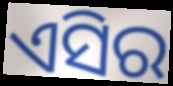
ଏସିର